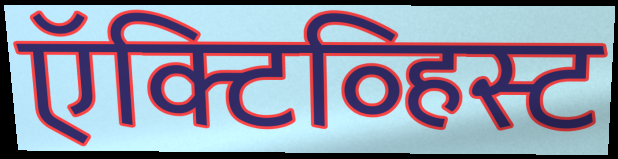
ऍक्टिव्हिस्ट